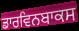
ਡਾਰਵਿਨਬਾਕਸ